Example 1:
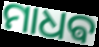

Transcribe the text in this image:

ମାଧଵ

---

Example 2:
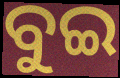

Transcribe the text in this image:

ବୁଇ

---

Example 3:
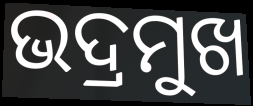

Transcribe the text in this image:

ଭଦ୍ରମୁଖ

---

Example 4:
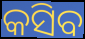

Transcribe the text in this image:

କସିବ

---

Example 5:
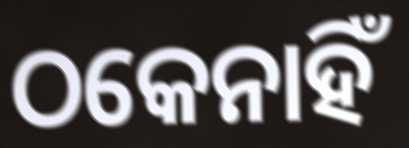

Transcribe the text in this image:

ଠକେନାହିଁ